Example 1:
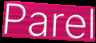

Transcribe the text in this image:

Parel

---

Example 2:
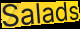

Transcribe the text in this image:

Salads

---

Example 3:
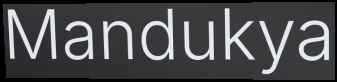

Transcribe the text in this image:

Mandukya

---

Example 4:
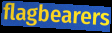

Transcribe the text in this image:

flagbearers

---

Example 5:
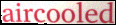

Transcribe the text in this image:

aircooled